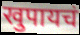
खुपायचं